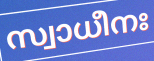
സ്വാധീനഃ